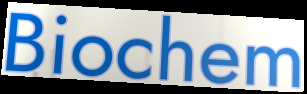
Biochem